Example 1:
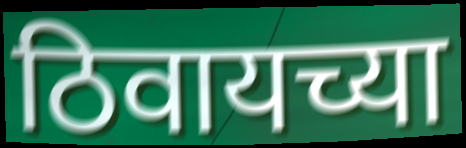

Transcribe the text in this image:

ठिवायच्या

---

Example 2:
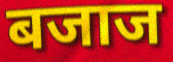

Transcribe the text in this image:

बजाज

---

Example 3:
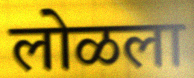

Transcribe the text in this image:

लोळला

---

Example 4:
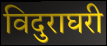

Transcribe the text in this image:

विदुराघरी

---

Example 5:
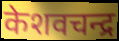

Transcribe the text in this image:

केशवचन्द्र